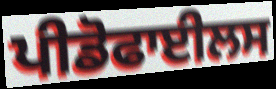
ਪੀਡੋਫਾਈਲਸ